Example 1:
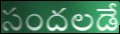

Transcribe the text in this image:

సందలడే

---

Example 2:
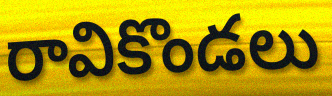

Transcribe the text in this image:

రావికొండలు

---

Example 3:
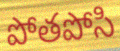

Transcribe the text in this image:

పోతపోసి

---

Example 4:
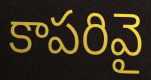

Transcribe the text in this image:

కాపరివై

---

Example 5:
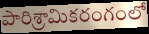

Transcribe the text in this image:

పారిశ్రామికరంగంలో